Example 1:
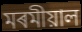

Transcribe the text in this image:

মৰমীয়াল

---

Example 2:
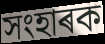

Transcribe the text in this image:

সংহাৰক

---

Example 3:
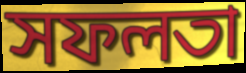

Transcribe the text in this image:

সফলতা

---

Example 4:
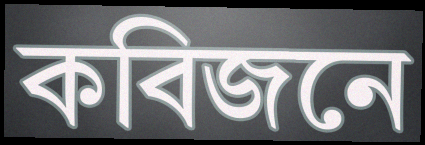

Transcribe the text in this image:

কবিজনে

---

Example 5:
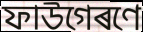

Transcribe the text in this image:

ফাউগেৰণে